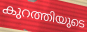
കുറത്തിയുടെ